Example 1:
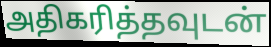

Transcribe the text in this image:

அதிகரித்தவுடன்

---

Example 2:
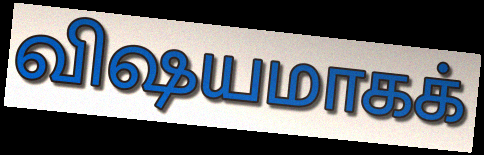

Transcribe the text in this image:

விஷயமாகக்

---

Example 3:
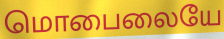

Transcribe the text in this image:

மொபைலையே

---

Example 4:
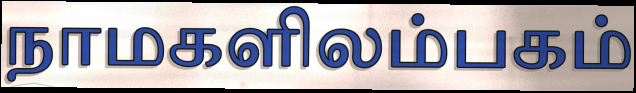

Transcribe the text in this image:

நாமகளிலம்பகம்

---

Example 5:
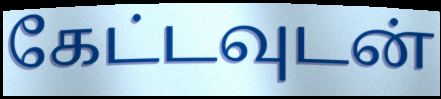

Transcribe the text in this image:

கேட்டவுடன்